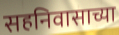
सहनिवासाच्या